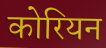
कोरियन